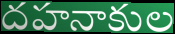
దహనాకుల